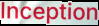
Inception